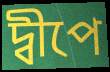
দ্বীপে